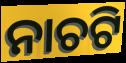
ନାଚଟି